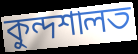
কুন্দশালত